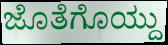
ಜೊತೆಗೊಯ್ದು